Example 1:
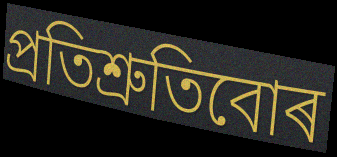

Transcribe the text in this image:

প্ৰতিশ্ৰুতিবোৰ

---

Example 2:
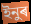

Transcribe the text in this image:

ইনুৰ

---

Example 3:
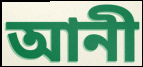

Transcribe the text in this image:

আনী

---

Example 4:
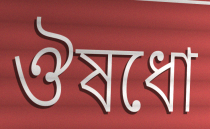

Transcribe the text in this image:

ঔষধো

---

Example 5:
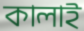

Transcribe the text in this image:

কালাই